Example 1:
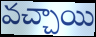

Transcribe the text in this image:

వచ్చాయి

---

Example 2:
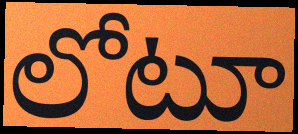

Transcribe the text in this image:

లోటూ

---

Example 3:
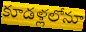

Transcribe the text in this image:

కూడళ్లలోనూ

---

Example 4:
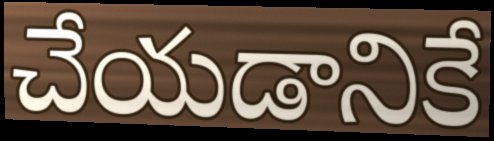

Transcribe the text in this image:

చేయడానికే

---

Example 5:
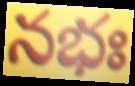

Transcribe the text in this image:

నభః